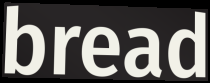
bread